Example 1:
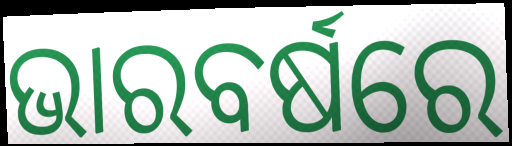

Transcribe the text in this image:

ଭାରବର୍ଷରେ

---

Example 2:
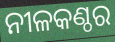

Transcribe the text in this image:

ନୀଳକଣ୍ଠର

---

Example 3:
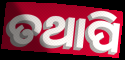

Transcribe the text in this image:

ତଥାପି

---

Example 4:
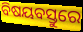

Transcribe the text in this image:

ବିଷୟବସ୍ତୁରେ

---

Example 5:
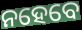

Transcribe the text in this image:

ନହେବେ